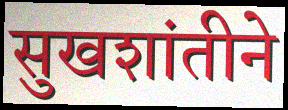
सुखशांतीने